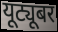
यूट्यूबर